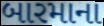
બારમાના